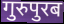
गुरुपुरब